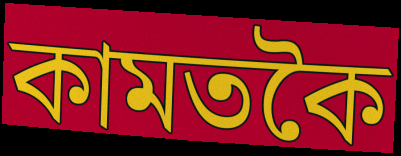
কামতকৈ